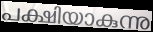
പക്ഷിയാകുന്നു